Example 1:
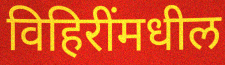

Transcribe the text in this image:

विहिरींमधील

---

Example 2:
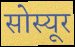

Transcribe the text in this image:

सोस्यूर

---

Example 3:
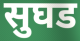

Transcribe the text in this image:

सुघड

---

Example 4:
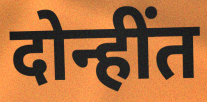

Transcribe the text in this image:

दोन्हींत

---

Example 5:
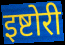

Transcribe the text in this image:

इष्टोरी